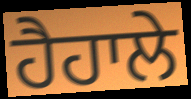
ਹੈਹਾਲੇ